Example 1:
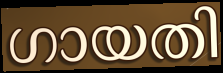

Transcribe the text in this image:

ഗായതി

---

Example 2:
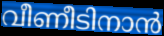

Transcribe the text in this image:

വീണീടിനാൻ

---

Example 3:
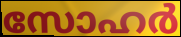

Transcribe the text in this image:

സോഹർ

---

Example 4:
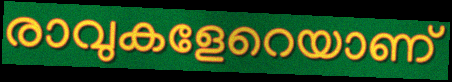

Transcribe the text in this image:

രാവുകളേറെയാണ്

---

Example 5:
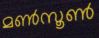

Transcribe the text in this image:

മൺസൂൺ